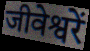
जीवेश्वरें